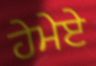
ਹੇਮੇਏ